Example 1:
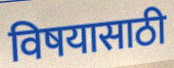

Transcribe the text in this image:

विषयासाठी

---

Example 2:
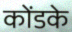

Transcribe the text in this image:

कोंडके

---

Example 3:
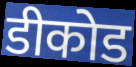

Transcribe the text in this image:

डीकोड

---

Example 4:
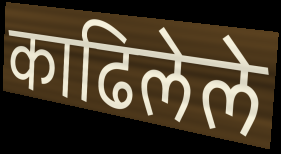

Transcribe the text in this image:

काढिलेले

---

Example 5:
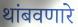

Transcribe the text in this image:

थांबवणारे